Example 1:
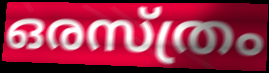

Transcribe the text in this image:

ഒരസ്ത്രം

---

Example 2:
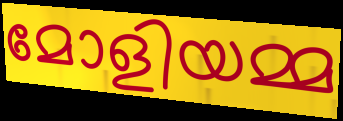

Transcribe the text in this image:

മോളിയമ്മ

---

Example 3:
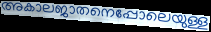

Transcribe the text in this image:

അകാലജാതനെപ്പോലെയുള്ള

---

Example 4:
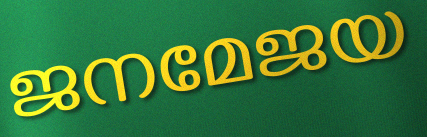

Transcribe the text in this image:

ജനമേജയ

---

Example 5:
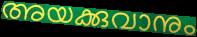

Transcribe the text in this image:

അയക്കുവാനും